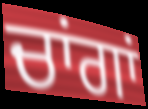
ਚਾਂਗਾਂ